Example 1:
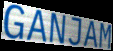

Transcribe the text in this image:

GANJAM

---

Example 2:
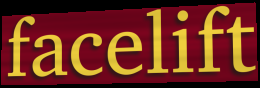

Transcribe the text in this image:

facelift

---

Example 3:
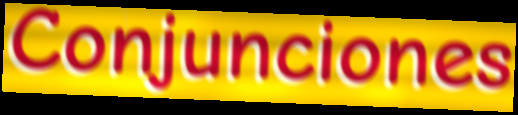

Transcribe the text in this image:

Conjunciones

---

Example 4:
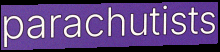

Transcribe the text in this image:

parachutists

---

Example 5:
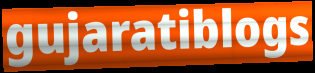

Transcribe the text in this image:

gujaratiblogs